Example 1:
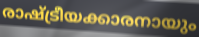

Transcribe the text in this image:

രാഷ്ട്രീയക്കാരനായും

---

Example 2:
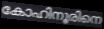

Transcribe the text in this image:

കോഹിനൂരിനെ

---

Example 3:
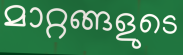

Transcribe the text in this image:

മാറ്റങ്ങളുടെ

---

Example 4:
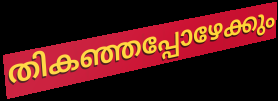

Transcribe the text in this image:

തികഞ്ഞപ്പോഴേക്കും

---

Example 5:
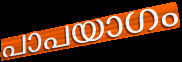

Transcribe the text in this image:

പാപയാഗം